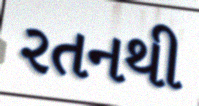
રતનથી